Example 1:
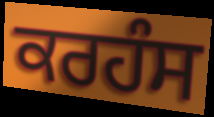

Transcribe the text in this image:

ਕਰਹੰਸ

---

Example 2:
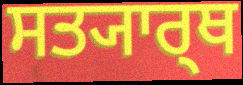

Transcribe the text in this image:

ਸਤ੍ਯਾਰ੍ਥ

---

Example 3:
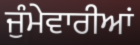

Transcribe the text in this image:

ਜੁੰਮੇਵਾਰੀਆਂ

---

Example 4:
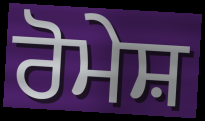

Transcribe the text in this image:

ਰੋਮੇਸ਼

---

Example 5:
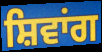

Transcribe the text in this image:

ਸ਼ਿਵਾਂਗ